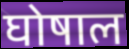
घोषाल